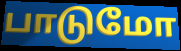
பாடுமோ